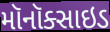
મૉનૉક્સાઇડ